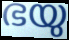
ഭയു